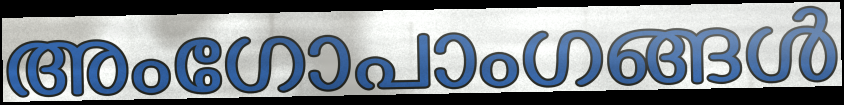
അംഗോപാംഗങ്ങൾ